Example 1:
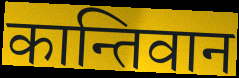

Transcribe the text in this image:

कान्तिवान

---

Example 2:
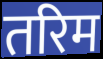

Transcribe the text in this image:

तरिम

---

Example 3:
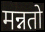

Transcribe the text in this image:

मन्नतो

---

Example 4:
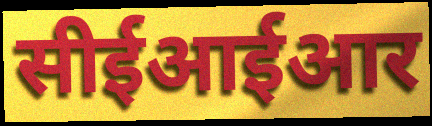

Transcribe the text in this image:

सीईआईआर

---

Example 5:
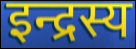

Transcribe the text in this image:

इन्द्रस्य